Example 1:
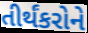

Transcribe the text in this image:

તીર્થંકરોને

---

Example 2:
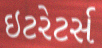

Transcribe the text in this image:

ઇટરેટર્સ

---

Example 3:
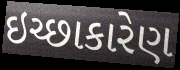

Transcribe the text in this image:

ઇચ્છાકારેણ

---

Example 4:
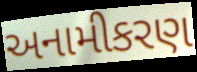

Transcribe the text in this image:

અનામીકરણ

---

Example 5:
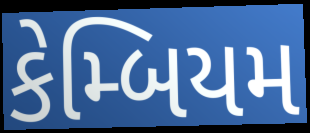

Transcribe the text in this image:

કેમ્બિયમ